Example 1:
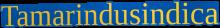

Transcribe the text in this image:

Tamarindusindica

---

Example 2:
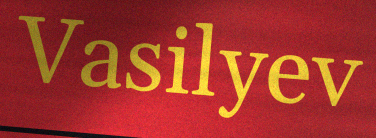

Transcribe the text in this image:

Vasilyev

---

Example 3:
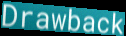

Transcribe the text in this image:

Drawback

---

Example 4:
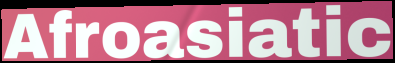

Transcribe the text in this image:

Afroasiatic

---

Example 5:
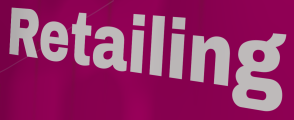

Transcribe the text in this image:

Retailing